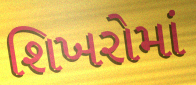
શિખરોમાં